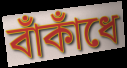
বাঁকাঁধে